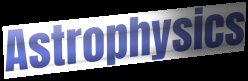
Astrophysics